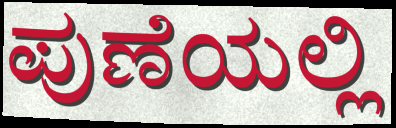
ಪುಣೆಯಲ್ಲಿ